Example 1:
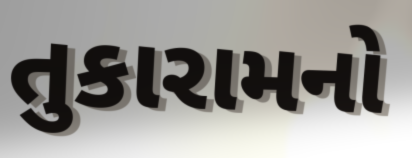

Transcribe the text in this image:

તુકારામનો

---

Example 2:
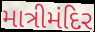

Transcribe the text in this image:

માત્રીમંદિર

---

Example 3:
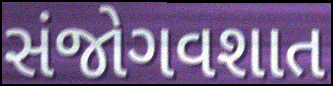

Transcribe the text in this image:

સંજોગવશાત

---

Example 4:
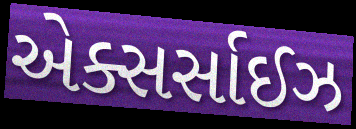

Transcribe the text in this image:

એક્સર્સાઈઝ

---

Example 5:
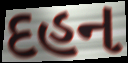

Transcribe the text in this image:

દહન